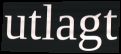
utlagt